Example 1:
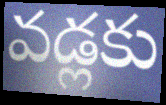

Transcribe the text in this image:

వడ్లకు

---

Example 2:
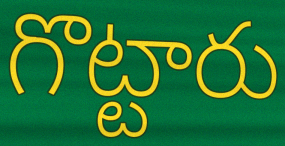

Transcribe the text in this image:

గొట్టారు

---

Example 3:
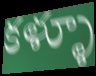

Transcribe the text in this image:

కళ్ళూ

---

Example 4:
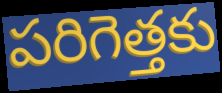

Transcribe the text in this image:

పరిగెత్తకు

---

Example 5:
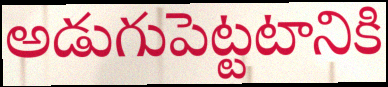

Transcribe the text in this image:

అడుగుపెట్టటానికి